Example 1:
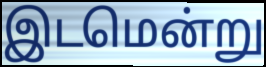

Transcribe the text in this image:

இடமென்று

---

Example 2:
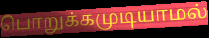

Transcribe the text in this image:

பொறுக்கமுடியாமல்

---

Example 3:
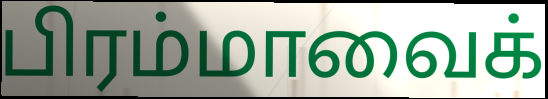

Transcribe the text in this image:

பிரம்மாவைக்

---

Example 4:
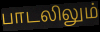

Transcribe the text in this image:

பாடலிலும்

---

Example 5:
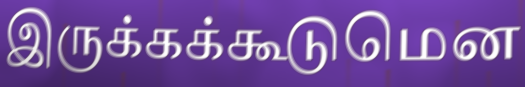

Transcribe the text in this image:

இருக்கக்கூடுமென